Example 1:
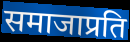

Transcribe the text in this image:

समाजाप्रति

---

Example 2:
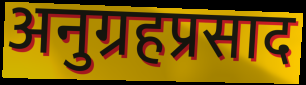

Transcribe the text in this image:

अनुग्रहप्रसाद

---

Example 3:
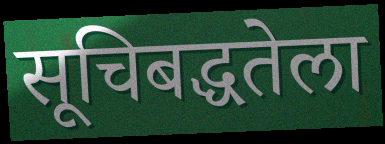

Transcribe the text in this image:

सूचिबद्धतेला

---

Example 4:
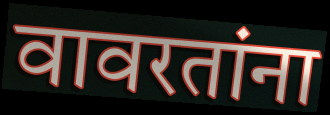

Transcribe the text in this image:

वावरतांना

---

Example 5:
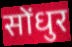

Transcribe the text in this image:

सोंधुर